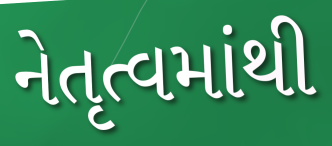
નેતૃત્વમાંથી